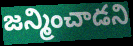
జన్మించాడని